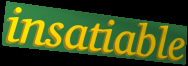
insatiable